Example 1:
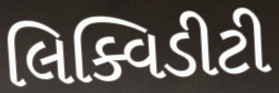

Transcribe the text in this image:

લિક્વિડીટી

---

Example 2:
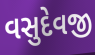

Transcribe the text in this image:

વસુદેવજી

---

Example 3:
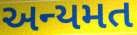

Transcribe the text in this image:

અન્યમત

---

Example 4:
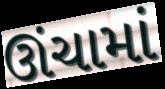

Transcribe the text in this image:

ઊંચામાં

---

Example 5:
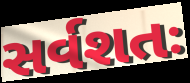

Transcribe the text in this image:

સર્વશતઃ